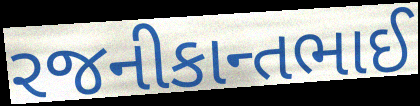
રજનીકાન્તભાઈ